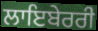
ਲਾਇਬੇਰਰੀ